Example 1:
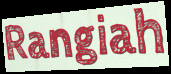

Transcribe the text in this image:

Rangiah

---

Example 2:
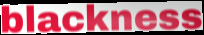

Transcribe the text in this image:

blackness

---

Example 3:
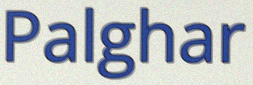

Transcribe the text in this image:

Palghar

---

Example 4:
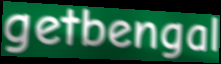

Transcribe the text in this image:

getbengal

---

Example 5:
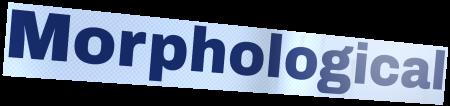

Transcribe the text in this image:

Morphological